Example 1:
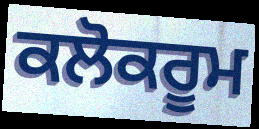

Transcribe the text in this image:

ਕਲੋਕਰੂਮ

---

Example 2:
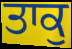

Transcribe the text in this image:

ਤਾਕੁ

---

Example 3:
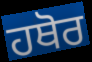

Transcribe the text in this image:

ਹਥੋਰ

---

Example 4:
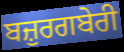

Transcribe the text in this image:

ਬਜ਼ੁਰਗਬੇਰੀ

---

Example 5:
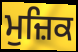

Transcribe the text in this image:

ਮੁਜ਼ਿਕ